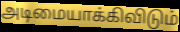
அடிமையாக்கிவிடும்